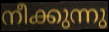
നീക്കുന്നു